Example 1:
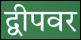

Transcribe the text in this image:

द्वीपवर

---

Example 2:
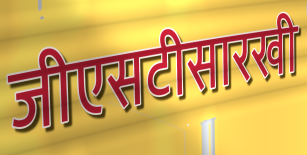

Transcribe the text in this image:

जीएसटीसारखी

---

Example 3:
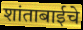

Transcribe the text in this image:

शांताबाईचे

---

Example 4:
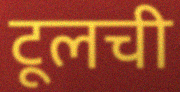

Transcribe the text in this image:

टूलची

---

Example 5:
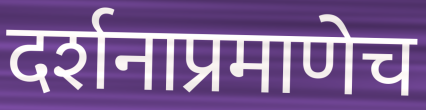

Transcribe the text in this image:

दर्शनाप्रमाणेच